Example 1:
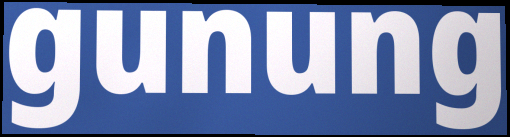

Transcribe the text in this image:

gunung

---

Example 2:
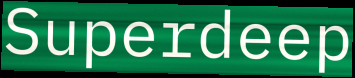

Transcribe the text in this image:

Superdeep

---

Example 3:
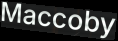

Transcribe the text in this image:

Maccoby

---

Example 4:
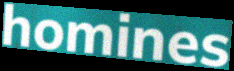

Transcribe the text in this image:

homines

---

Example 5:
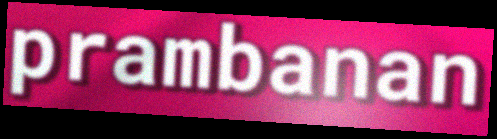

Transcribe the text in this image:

prambanan